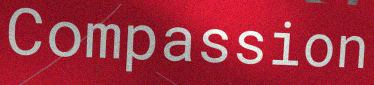
Compassion